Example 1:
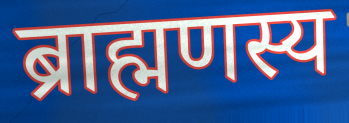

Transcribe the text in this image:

ब्राह्मणस्य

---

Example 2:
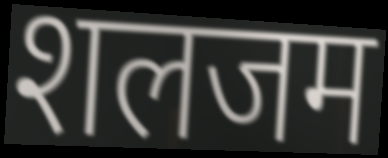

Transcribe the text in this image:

शलजम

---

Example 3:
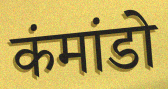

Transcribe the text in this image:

कंमांडो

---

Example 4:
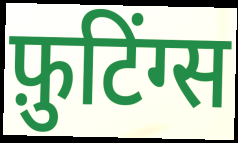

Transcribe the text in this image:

फ़ुटिंग्स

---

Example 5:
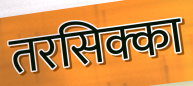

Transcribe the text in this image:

तरसिक्का